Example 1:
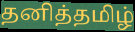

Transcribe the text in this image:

தனித்தமிழ்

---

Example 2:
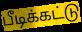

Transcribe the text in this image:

பீடிக்கட்டு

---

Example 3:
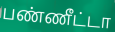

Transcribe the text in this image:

பண்ணீட்டா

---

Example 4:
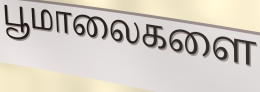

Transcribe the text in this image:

பூமாலைகளை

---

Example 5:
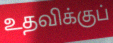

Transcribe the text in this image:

உதவிக்குப்